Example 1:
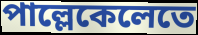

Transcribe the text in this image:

পাল্লেকেলেতে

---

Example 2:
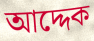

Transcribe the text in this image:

আদ্দেক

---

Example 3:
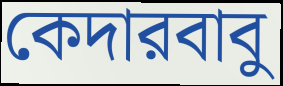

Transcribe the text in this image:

কেদারবাবু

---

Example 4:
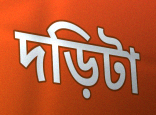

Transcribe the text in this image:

দড়িটা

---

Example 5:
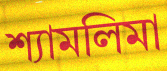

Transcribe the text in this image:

শ্যামলিমা